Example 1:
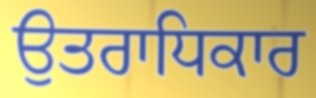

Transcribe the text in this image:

ਉਤਰਾਧਿਕਾਰ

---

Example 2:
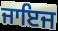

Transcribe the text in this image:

ਜਾਇਜ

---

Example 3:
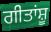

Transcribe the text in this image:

ਗੀਤਾਂਸ਼ੂ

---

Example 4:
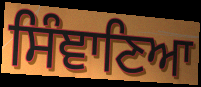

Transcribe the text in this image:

ਸਿੰਞਾਣਿਆ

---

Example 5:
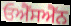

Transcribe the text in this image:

ਓਐੱਸਐੱਨ